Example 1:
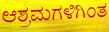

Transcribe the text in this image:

ಆಶ್ರಮಗಳಿಗಿಂತ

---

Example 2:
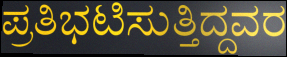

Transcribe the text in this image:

ಪ್ರತಿಭಟಿಸುತ್ತಿದ್ದವರ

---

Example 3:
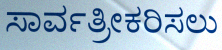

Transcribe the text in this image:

ಸಾರ್ವತ್ರೀಕರಿಸಲು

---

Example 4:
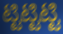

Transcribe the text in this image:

ಟ್ಟಿಟ್ಟಿಟ್ಟಿ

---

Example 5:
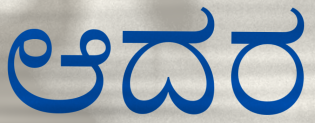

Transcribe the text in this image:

ಆದರ